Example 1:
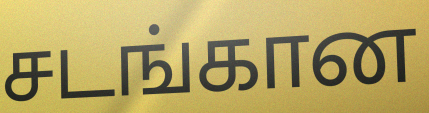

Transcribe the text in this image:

சடங்கான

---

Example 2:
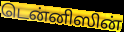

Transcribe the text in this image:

டென்னிஸின்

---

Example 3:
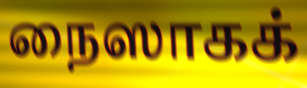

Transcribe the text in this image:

நைஸாகக்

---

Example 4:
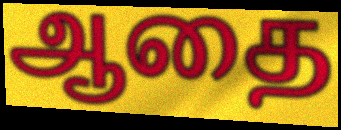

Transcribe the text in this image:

ஆதை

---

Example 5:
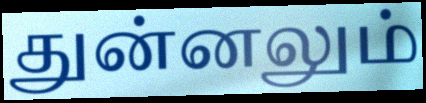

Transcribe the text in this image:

துன்னலும்